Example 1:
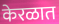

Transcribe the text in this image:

केरळात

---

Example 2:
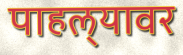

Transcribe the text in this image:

पाहल्यावर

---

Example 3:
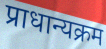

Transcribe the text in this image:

प्राधान्यक्रम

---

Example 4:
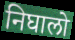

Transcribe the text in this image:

निघालो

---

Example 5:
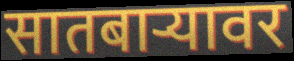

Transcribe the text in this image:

सातबाऱ्यावर